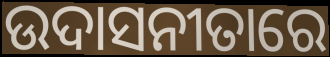
ଉଦାସନୀତାରେ